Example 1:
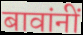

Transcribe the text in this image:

बावांनीं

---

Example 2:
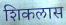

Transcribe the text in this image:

शिकलास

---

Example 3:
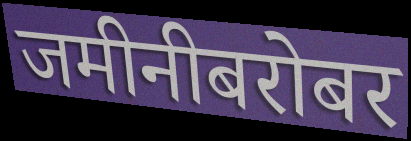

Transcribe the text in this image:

जमीनीबरोबर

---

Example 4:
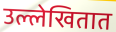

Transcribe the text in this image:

उल्लेखितात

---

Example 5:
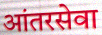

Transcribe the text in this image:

आंतरसेवा